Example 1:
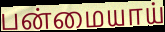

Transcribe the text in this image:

பன்மையாய்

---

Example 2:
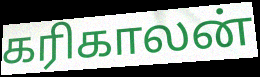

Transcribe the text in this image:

கரிகாலன்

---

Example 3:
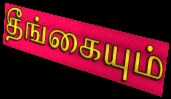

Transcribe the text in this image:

தீங்கையும்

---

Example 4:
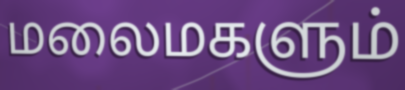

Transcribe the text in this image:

மலைமகளும்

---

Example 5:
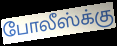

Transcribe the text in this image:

போலீஸ்க்கு